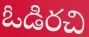
ఓడిరచి